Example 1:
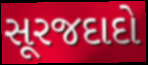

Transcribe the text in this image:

સૂરજદાદો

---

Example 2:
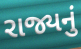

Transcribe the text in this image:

રાજ્યનું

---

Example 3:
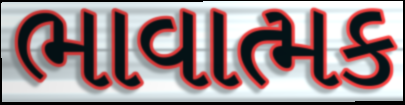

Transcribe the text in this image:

ભાવાત્મક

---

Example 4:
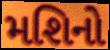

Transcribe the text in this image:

મશિનો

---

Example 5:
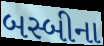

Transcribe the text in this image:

બસ્બીના